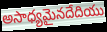
అసాధ్యమైనదేదియు